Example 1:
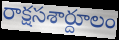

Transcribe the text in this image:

రాక్షసశార్దూలం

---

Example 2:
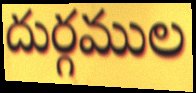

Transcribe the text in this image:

దుర్గముల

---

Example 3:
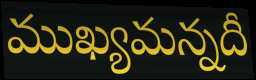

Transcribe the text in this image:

ముఖ్యమన్నదీ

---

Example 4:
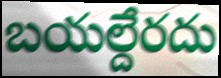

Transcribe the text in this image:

బయల్దేరదు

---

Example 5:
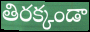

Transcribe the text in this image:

తిరక్కండా